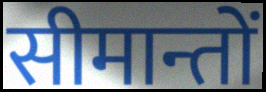
सीमान्तों